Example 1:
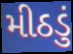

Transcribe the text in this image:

મીઠડું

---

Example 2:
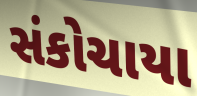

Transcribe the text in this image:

સંકોચાયા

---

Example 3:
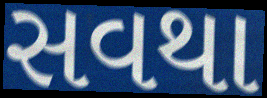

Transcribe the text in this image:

સવથા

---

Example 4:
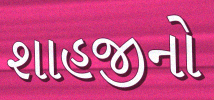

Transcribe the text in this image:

શાહજીનો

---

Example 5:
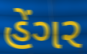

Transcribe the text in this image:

હેંગર